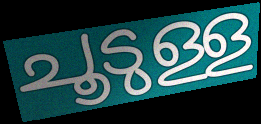
ചൂടുള്ള